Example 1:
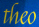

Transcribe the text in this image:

theo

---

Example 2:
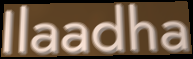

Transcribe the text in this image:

Ilaadha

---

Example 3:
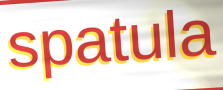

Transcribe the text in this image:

spatula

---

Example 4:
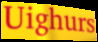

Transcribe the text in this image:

Uighurs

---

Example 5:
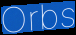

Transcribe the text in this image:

Orbs